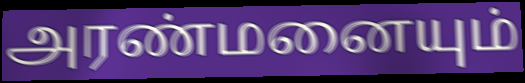
அரண்மனையும்